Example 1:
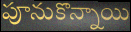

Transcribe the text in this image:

పూనుకొన్నాయి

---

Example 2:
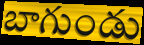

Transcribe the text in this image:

బాగుండు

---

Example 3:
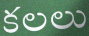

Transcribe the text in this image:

కలలు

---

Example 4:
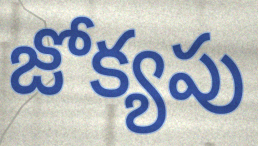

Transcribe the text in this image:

జోక్యపు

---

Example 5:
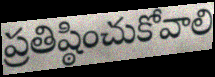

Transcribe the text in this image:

ప్రతిష్ఠించుకోవాలి